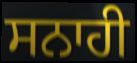
ਸਨਾਹੀ